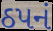
ઠપનં